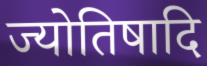
ज्योतिषादि